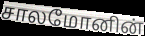
சாலமோனின்